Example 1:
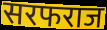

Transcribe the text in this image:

सरफराज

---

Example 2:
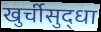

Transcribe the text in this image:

खुर्चीसुद्धा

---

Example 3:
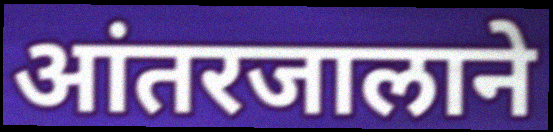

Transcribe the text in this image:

आंतरजालाने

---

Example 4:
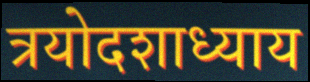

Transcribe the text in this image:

त्रयोदशाध्याय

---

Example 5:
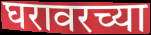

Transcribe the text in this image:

घरावरच्या